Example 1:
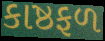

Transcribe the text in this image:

કાષ્ઠફળ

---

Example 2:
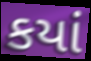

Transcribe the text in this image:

કયાં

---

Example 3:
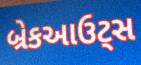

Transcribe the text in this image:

બ્રેકઆઉટ્સ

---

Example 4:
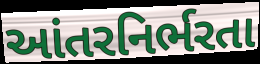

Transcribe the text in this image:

આંતરનિર્ભરતા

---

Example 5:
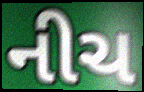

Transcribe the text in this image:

નીચ